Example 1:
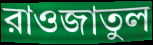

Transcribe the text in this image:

রাওজাতুল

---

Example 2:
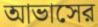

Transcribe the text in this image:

আভাসের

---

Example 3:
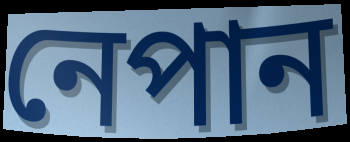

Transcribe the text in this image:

নেপান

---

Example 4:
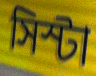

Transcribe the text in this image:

সিস্টা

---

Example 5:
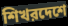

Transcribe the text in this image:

শিখরদেশে